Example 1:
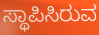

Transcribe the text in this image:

ಸ್ಥಾಪಿಸಿರುವ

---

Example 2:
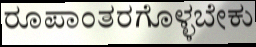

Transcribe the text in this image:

ರೂಪಾಂತರಗೊಳ್ಳಬೇಕು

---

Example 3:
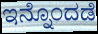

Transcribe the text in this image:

ಇನ್ನೊಂದಡೆ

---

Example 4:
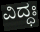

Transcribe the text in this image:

ವಿದ್ಧಃ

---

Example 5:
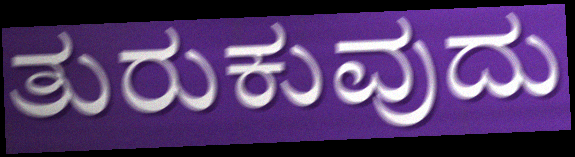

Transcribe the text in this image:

ತುರುಕುವುದು